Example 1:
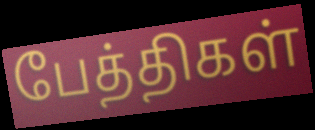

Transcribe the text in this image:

பேத்திகள்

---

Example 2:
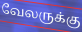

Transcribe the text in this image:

வேலருக்கு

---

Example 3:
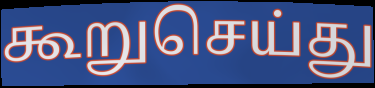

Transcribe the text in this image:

கூறுசெய்து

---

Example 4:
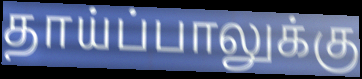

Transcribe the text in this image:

தாய்ப்பாலுக்கு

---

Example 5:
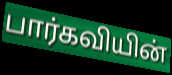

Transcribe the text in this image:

பார்கவியின்